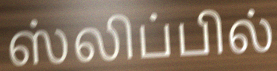
ஸ்லிப்பில்